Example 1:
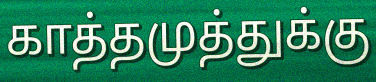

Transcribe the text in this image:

காத்தமுத்துக்கு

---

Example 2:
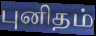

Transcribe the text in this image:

புனிதம்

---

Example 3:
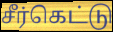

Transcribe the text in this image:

சீர்கெட்டு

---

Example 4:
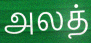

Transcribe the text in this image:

அலத்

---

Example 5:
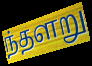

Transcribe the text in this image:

ந்தளறு